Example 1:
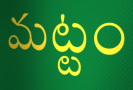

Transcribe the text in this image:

మట్టం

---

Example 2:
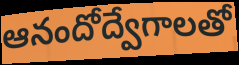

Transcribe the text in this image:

ఆనందోద్వేగాలతో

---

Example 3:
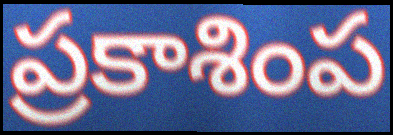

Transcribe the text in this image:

ప్రకాశింప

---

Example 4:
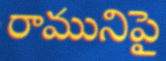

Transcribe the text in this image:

రామునిపై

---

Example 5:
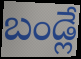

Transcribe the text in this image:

బండ్లే